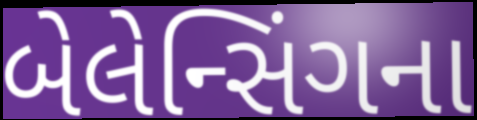
બેલેન્સિંગના